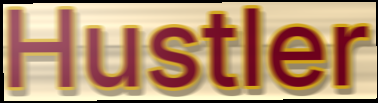
Hustler